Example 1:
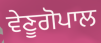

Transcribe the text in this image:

ਵੇਣੂਗੋਪਾਲ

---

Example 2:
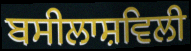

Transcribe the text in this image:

ਬਸੀਲਾਸ਼ਵਿਲੀ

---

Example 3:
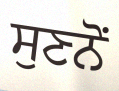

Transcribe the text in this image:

ਸੁਣਨੋਂ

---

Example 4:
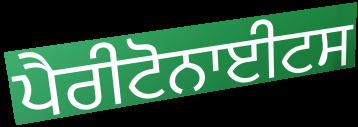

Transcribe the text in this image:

ਪੈਰੀਟੋਨਾਈਟਸ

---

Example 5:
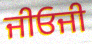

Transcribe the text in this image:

ਜੀਓਜੀ